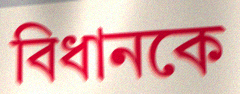
বিধানকে